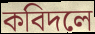
কবিদলে